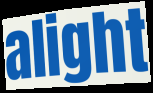
alight